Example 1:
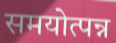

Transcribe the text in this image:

समयोत्पन्न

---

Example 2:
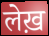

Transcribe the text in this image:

लेख़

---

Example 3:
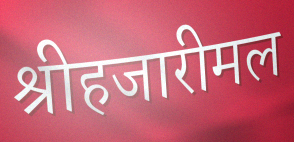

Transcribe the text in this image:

श्रीहजारीमल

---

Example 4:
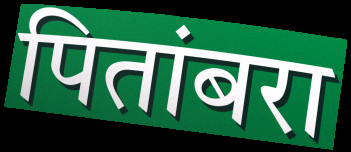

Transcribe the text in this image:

पितांबरा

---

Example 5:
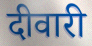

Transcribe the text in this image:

दीवारी